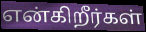
என்கிறீர்கள்